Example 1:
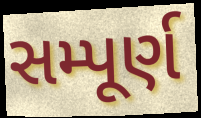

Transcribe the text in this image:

સમ્પૂર્ણ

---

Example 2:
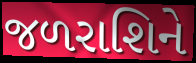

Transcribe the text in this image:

જળરાશિને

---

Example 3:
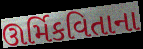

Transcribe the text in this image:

ઊર્મિકવિતાના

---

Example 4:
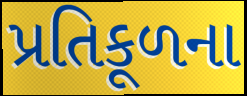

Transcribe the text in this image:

પ્રતિકૂળના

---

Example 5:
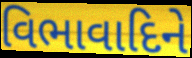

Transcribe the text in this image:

વિભાવાદિને